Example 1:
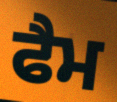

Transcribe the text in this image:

ਫੈਮ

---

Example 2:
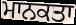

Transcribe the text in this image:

ਮਾਨਕਤਾ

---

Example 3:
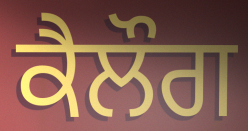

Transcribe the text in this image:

ਕੈਲੌਗ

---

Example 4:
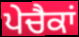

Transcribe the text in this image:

ਪੇਚੈਕਾਂ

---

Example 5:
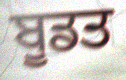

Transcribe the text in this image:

ਬੂਡਤ